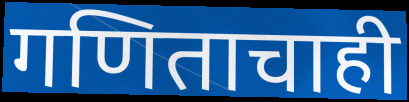
गणिताचाही